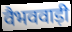
वैभववाड़ी